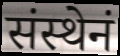
संस्थेनं